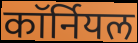
कॉर्नियल